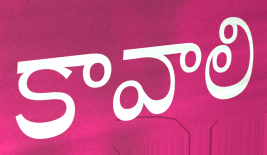
కావాలి